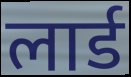
लार्ड